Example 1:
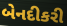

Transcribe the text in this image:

બેનદીકરી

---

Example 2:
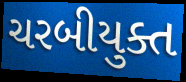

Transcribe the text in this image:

ચરબીયુક્ત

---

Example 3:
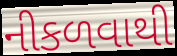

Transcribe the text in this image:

નીકળવાથી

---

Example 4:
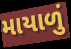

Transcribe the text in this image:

માયાળું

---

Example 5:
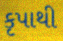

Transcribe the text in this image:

કૃપાથી